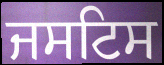
ਜਸਟਿਸ